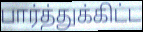
பார்த்துக்கிட்ட